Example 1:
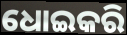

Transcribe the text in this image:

ଧୋଇକରି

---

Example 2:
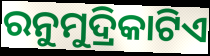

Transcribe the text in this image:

ରନୁମୁଦ୍ରିକାଟିଏ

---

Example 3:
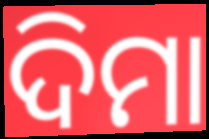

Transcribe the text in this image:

ଦିମା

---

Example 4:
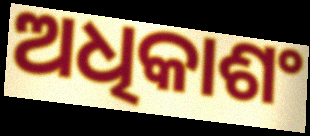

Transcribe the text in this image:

ଅଧିକାଶଂ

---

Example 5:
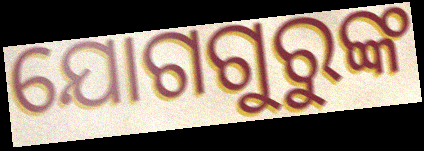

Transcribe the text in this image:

ଯୋଗଗୁରୁଙ୍କ